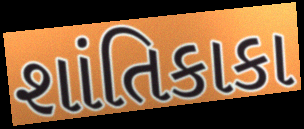
શાંતિકાકા